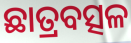
ଛାତ୍ରବତ୍ସଳ